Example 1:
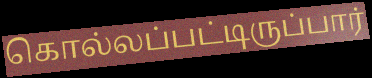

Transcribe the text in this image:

கொல்லப்பட்டிருப்பார்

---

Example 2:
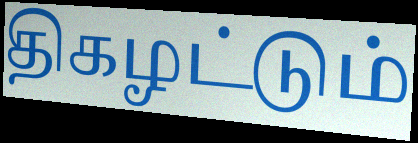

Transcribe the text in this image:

திகழட்டும்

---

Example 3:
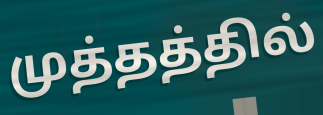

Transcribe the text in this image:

முத்தத்தில்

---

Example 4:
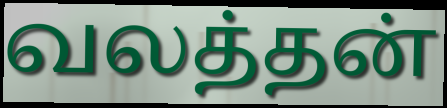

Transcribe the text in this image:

வலத்தன்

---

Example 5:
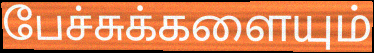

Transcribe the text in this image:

பேச்சுக்களையும்